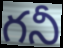
గనీ